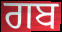
ਗਬ